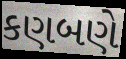
કણબણે